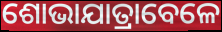
ଶୋଭାଯାତ୍ରାବେଳେ